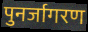
पुनर्जागरण